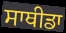
ਸਾਥੀਡਾ